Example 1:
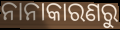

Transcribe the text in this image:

ନାନାକାରଣରୁ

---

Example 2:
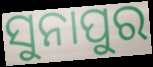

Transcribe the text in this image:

ସୁନାପୁର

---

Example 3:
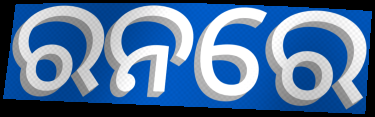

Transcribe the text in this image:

ରନରେ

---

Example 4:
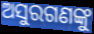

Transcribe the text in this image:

ଅସୁରଗଣଙ୍କୁ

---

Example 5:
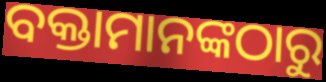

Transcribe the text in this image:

ବକ୍ତାମାନଙ୍କଠାରୁ